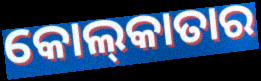
କୋଲ୍‌କାତାର